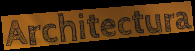
Architectura